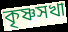
কৃষ্ণসখা